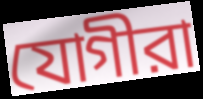
যোগীরা